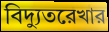
বিদ্যুতরেখার